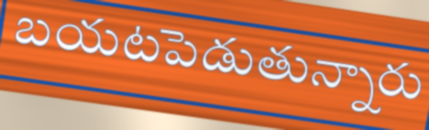
బయటపెడుతున్నారు